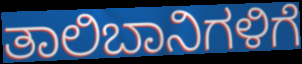
ತಾಲಿಬಾನಿಗಳಿಗೆ